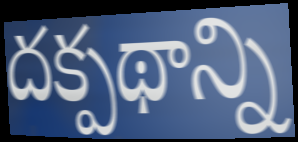
దక్పథాన్ని